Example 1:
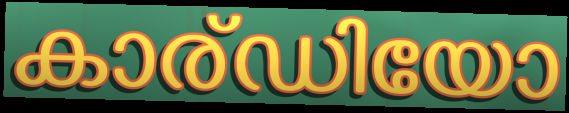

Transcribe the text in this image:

കാര്ഡിയോ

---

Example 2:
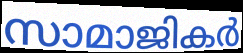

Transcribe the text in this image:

സാമാജികർ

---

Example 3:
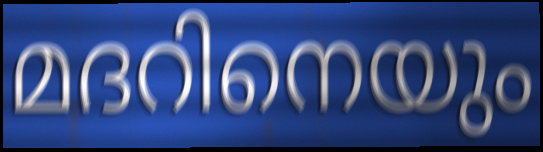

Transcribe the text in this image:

മദറിനെയും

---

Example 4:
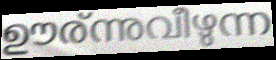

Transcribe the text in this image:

ഊര്ന്നുവീഴുന്ന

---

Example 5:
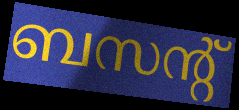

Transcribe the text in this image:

ബസന്റ്